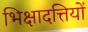
भिक्षादत्तियों